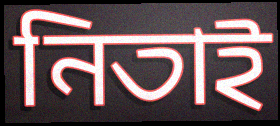
নিতাই